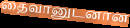
தைவானுடனான